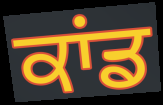
ਕਾਂਡ